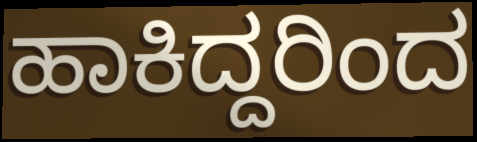
ಹಾಕಿದ್ದರಿಂದ